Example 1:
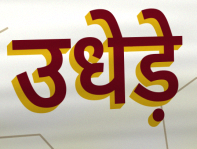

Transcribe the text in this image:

उधेड़े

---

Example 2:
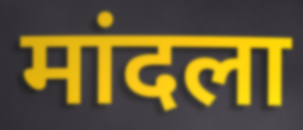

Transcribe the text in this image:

मांदला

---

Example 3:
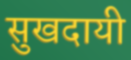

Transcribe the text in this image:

सुखदायी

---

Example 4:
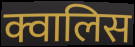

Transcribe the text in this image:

क्वालिस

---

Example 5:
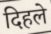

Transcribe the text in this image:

दिहले